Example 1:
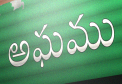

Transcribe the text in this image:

అఘము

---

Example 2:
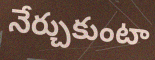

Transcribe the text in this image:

నేర్చుకుంటా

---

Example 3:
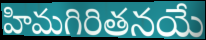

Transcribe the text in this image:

హిమగిరితనయే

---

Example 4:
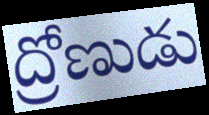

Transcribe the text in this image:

ద్రోణుడు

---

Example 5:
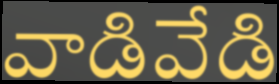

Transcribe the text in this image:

వాడివేడి